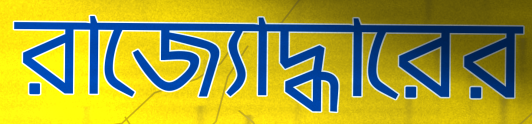
রাজ্যোদ্ধারের